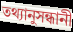
তথ্যানুসন্ধানী